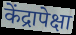
केंद्रापेक्षा